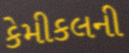
કેમીકલની